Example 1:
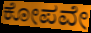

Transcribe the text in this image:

ಕೋಪವೇ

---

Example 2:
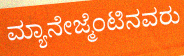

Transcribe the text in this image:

ಮ್ಯಾನೇಜ್ಮೆಂಟಿನವರು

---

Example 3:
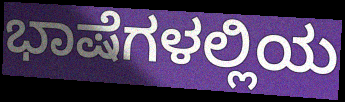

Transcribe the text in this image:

ಭಾಷೆಗಳಲ್ಲಿಯ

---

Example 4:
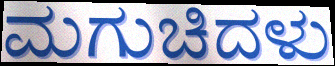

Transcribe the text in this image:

ಮಗುಚಿದಳು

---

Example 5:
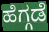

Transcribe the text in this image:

ಹೆಗ್ಗಡೆ